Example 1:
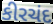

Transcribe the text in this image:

કીરચંદ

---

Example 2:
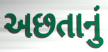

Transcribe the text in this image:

અછતાનું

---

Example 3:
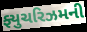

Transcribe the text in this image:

ફ્યુચરિઝમની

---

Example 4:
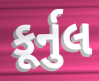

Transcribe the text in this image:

કૂર્નુલ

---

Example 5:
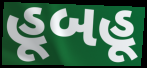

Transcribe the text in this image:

હૂબહૂ